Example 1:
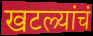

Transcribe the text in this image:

खटल्यांचं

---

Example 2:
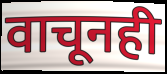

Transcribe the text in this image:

वाचूनही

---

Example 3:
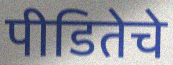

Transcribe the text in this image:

पीडितेचे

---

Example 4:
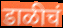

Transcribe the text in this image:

डाळीचं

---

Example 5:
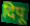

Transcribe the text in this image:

दिपू